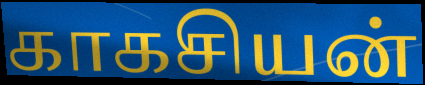
காகசியன்